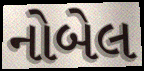
નોબેલ